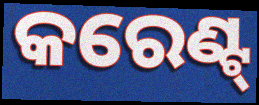
କରେଣ୍ଟ୍